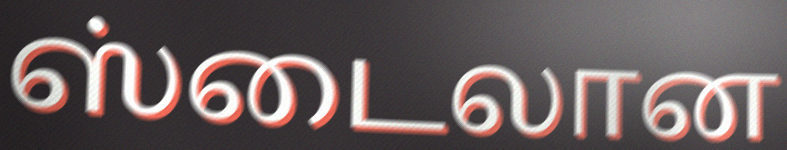
ஸ்டைலான